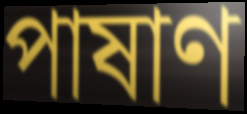
পাষাণ